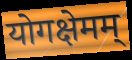
योगक्षेमम्